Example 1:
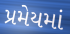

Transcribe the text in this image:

પ્રમેયમાં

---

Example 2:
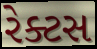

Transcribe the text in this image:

રેક્ટસ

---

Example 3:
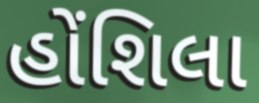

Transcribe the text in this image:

હોંશિલા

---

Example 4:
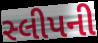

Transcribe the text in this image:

સ્લીપની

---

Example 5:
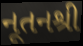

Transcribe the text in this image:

નૂતનશ્રી